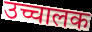
उच्चालक